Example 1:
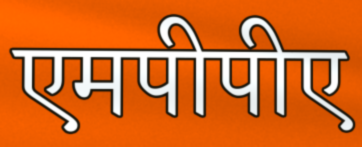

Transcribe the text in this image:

एमपीपीए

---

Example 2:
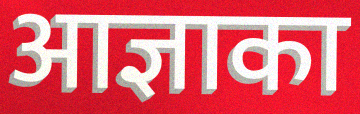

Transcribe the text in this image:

आज्ञाका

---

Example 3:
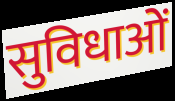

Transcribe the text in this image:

सुविधाओें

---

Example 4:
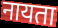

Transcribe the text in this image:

नायता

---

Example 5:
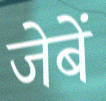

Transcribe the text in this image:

जेबें